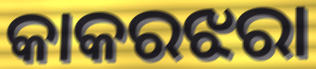
କାକରଝରା